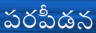
పరపీడన